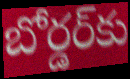
బోర్డర్‌కు